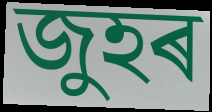
জুহৰ